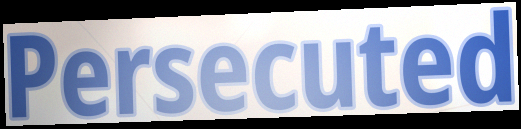
Persecuted